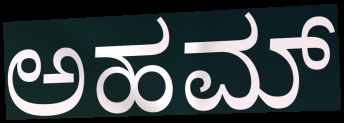
ಅಹಮ್